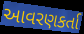
આવરણકર્તા